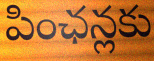
పింఛన్లకు